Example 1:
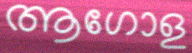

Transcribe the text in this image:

ആഗോള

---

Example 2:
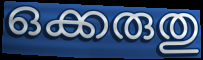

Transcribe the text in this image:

ഒക്കരുതു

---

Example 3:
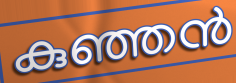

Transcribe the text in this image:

കുഞ്ഞൻ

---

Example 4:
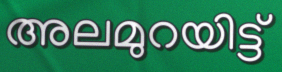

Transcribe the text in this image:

അലമുറയിട്ട്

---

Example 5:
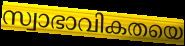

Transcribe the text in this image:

സ്വാഭാവികതയെ